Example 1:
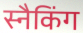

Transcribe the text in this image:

स्नैकिंग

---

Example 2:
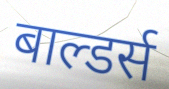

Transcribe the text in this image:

बाल्डर्स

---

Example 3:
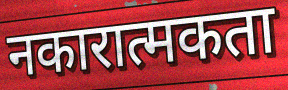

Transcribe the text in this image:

नकारात्मकता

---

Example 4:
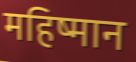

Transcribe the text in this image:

महिष्मान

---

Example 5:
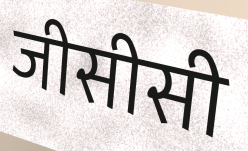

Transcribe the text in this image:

जीसीसी